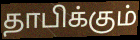
தாபிக்கும்